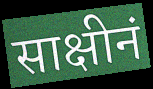
साक्षीनं